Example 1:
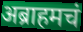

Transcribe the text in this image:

अब्राहमचं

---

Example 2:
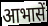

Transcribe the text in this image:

आभासें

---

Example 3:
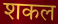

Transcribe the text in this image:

शकल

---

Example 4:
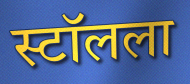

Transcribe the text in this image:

स्टॉलला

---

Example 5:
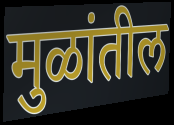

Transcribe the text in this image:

मुळांतील